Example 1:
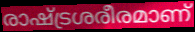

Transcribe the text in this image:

രാഷ്ട്രശരീരമാണ്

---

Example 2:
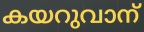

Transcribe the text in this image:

കയറുവാന്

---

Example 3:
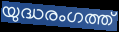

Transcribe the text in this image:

യുദ്ധരംഗത്ത്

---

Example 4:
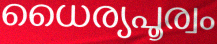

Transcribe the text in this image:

ധൈര്യപൂര്വം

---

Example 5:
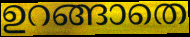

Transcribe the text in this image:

ഉറങ്ങാതെ